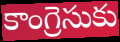
కాంగ్రెసుకు